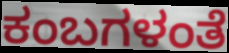
ಕಂಬಗಳಂತೆ